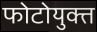
फोटोयुक्त